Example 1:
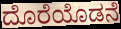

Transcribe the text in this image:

ದೊರೆಯೊಡನೆ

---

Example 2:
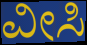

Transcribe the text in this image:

ವೀಸಿ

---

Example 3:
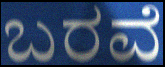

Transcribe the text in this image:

ಬರವೆ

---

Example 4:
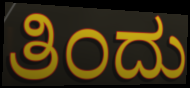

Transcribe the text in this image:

ತಿಂದು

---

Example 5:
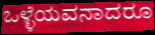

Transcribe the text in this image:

ಒಳ್ಳೆಯವನಾದರೂ